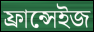
ফ্ৰান্সেইজ